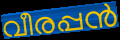
വീരപ്പൻ